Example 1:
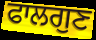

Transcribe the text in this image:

ਫਾਲਗੁਣ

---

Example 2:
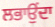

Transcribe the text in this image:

ਲਭਾਉਂਦਾ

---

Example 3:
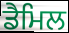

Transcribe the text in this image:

ਡੈਮਿਲ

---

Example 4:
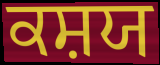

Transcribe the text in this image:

ਕਸ਼ਯ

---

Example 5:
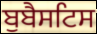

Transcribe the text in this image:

ਬੁਬੈਸਟਿਸ